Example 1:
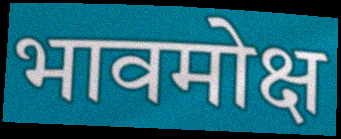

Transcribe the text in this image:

भावमोक्ष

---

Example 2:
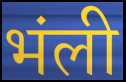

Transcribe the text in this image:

भंली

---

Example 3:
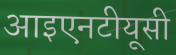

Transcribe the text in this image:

आइएनटीयूसी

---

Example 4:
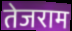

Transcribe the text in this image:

तेजराम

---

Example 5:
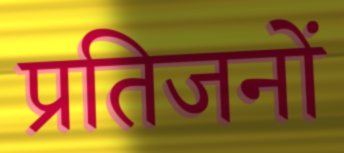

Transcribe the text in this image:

प्रतिजनों